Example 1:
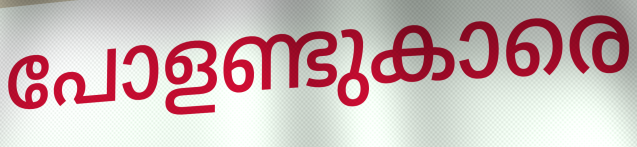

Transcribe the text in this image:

പോളണ്ടുകാരെ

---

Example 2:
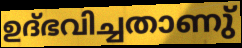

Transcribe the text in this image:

ഉദ്ഭവിച്ചതാണു്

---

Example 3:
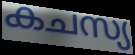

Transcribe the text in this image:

കചസ്യ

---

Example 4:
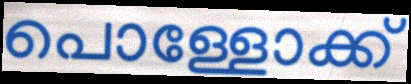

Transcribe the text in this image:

പൊള്ളോക്ക്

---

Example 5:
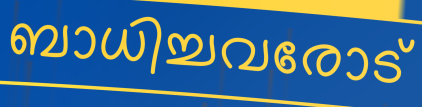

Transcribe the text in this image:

ബാധിച്ചവരോട്